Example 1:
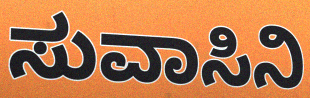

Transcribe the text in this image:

ಸುವಾಸಿನಿ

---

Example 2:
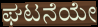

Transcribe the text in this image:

ಘಟನೆಯೇ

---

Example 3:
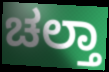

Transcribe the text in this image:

ಚಲ್ತಾ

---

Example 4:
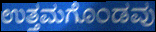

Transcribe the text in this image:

ಉತ್ತಮಗೊಂಡವು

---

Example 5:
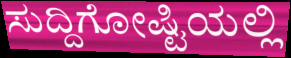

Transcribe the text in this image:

ಸುದ್ದಿಗೋಷ್ಟಿಯಲ್ಲಿ